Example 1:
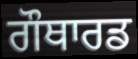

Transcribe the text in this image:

ਗੌਥਾਰਡ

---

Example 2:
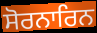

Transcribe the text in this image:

ਸੋਰਨਾਰਿਨ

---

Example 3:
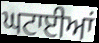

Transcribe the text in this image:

ਘਟਾਈਆਂ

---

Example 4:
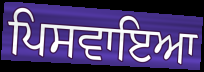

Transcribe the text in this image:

ਪਿਸਵਾਇਆ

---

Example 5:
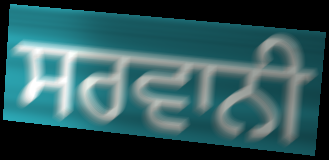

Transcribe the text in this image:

ਸਰਵਾਨੀ